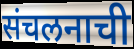
संचलनाची